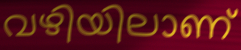
വഴിയിലാണ്